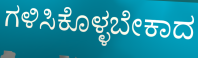
ಗಳಿಸಿಕೊಳ್ಳಬೇಕಾದ